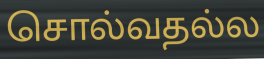
சொல்வதல்ல